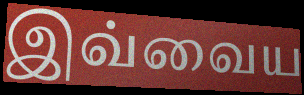
இவ்வைய